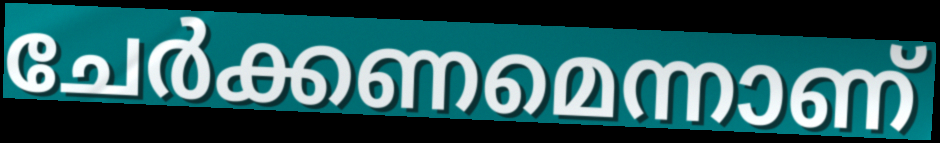
ചേർക്കണമെന്നാണ്